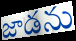
జాడను